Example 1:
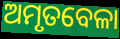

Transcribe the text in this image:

ଅମୃତବେଳା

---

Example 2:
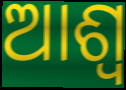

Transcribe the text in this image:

ଆଶ୍ୱ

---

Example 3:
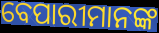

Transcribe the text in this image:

ବେପାରୀମାନଙ୍କ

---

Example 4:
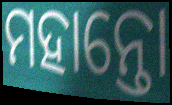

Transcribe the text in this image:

ମହାନ୍ତୋ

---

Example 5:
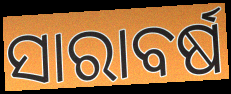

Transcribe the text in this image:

ସାରାବର୍ଷ